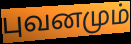
புவனமும்